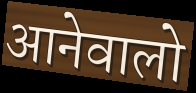
आनेवालो